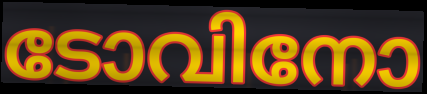
ടോവിനോ